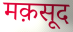
मक़सूद